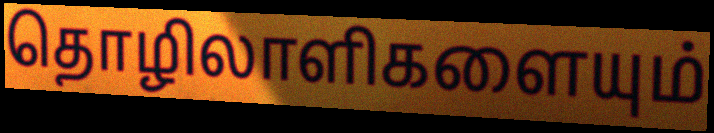
தொழிலாளிகளையும்